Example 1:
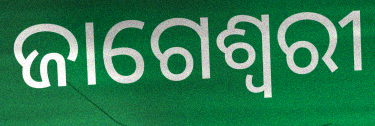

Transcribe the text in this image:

ଜାଗେଶ୍ୱରୀ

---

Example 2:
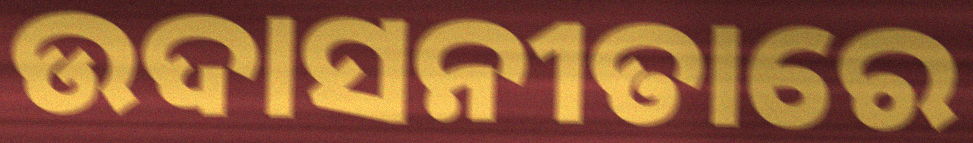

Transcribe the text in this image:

ଉଦାସନୀତାରେ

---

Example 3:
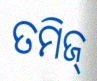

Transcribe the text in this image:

ତମିଜ୍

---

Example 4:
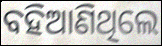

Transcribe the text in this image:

ବହିଆଣିଥିଲେ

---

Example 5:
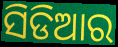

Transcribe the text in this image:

ସିଡିଆର